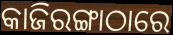
କାଜିରଙ୍ଗାଠାରେ